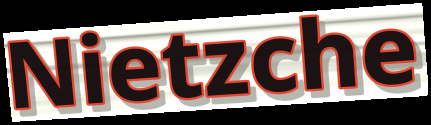
Nietzche